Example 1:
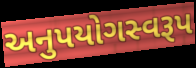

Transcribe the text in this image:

અનુપયોગસ્વરૂપ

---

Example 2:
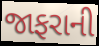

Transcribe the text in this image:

જાફરાની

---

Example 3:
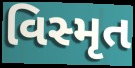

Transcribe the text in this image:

વિસ્મૃત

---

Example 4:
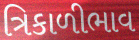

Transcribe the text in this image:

ત્રિકાળીભાવ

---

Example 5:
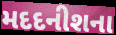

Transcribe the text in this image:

મદદનીશના